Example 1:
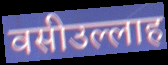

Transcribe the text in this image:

वसीउल्लाह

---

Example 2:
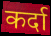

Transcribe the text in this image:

कर्दा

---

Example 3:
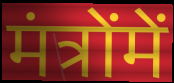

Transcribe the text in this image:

मंत्रोंमें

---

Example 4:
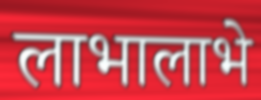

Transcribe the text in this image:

लाभालाभे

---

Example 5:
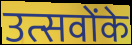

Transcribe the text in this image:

उत्सवोंके